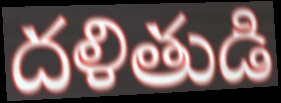
దళితుడి